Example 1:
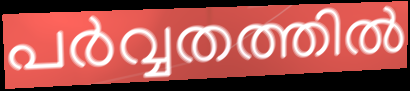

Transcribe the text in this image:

പർവ്വതത്തിൽ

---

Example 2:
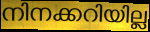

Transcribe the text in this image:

നിനക്കറിയില്ല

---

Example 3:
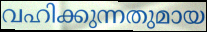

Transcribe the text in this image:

വഹിക്കുന്നതുമായ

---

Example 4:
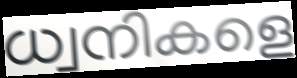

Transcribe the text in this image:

ധ്വനികളെ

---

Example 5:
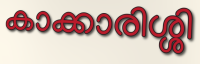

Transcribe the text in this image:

കാക്കാരിശ്ശി